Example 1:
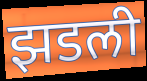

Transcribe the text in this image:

झडली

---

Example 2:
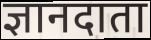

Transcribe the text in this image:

ज्ञानदाता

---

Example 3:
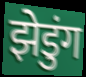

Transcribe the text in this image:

झेडुंग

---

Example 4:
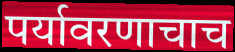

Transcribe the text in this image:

पर्यावरणाचाच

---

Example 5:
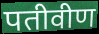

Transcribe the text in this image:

पतीवीण